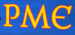
PME